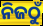
ନିଜଠୁଁ